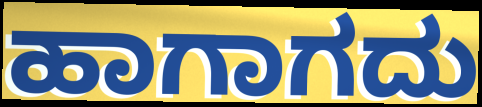
ಹಾಗಾಗದು